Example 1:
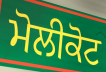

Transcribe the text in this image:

ਮੋਲੀਕੋਟ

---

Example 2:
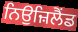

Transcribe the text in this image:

ਨਿਉਜ਼ਿਲੈਂਡ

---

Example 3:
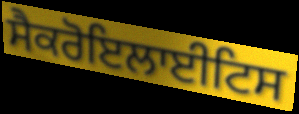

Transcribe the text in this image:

ਸੈਕਰੋਇਲਾਈਟਿਸ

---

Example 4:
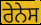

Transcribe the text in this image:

ਰੇਨੇਸ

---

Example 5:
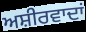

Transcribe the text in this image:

ਅਸ਼ੀਰਵਾਦਾਂ